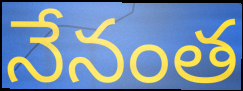
నేనంత